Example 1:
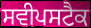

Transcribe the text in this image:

ਸਵੀਪਸਟੈਕ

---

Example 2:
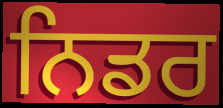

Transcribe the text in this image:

ਨਿਡਰ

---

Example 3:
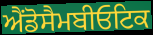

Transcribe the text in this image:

ਐਂਡੋਸੈਮਬੀਓਟਿਕ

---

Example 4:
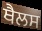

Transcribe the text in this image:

ਥੈਲਸ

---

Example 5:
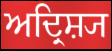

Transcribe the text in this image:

ਅਦ੍ਰਿਸ਼੍ਯ